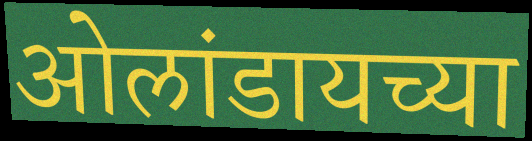
ओलांडायच्या